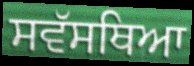
ਸਵੱਸਥਿਆ